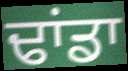
ਢਾਂਡਾ